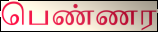
பெண்ணர